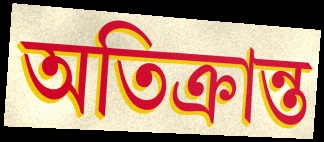
অতিক্ৰান্ত